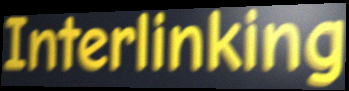
Interlinking